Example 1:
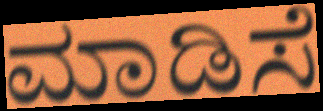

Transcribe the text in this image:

ಮಾಡಿಸೆ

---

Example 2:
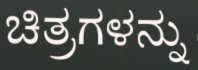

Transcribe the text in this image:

ಚಿತ್ರಗಳನ್ನು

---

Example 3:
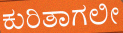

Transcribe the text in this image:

ಕುರಿತಾಗಲೀ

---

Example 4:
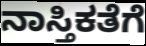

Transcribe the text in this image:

ನಾಸ್ತಿಕತೆಗೆ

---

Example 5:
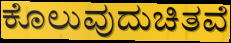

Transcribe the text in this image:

ಕೊಲುವುದುಚಿತವೆ